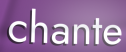
chante